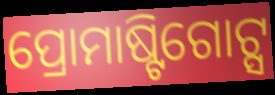
ପ୍ରୋମାଷ୍ଟିଗୋଟ୍ସ